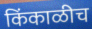
किंकाळीच